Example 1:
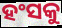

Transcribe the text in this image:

ହଂସକୁ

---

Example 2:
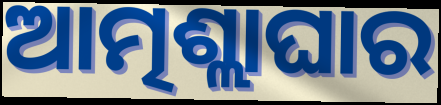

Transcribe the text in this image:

ଆତ୍ମଶ୍ଲାଘାର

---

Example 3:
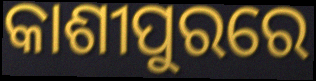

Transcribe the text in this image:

କାଶୀପୁରରେ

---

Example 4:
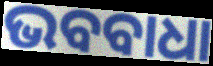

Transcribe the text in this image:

ଭବବାଧା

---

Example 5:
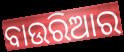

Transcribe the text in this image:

ବାଉରିଆର